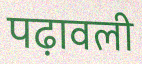
पढ़ावली